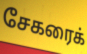
சேகரைக்